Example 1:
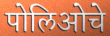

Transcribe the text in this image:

पोलिओचे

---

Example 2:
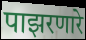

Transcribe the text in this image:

पाझरणारे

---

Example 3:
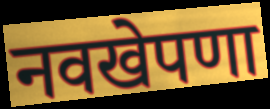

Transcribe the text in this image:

नवखेपणा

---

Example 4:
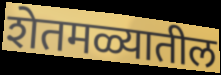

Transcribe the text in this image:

शेतमळ्यातील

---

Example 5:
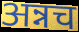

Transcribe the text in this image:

अन्नच